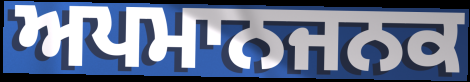
ਅਪਮਾਨਜਨਕ